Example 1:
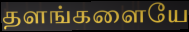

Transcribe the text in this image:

தளங்களையே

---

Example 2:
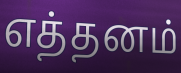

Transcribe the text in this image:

எத்தனம்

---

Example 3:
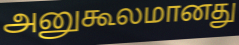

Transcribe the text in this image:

அனுகூலமானது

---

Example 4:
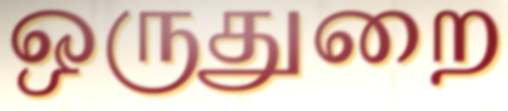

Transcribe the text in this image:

ஒருதுறை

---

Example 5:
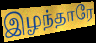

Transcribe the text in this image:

இழந்தாரே